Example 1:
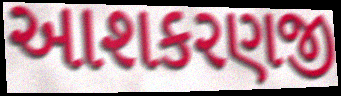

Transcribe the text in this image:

આશકરણજી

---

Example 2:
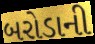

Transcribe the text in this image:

બરોડાની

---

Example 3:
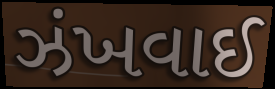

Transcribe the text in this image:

ઝંખવાઈ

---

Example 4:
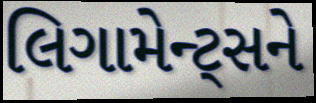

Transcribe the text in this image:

લિગામેન્ટ્સને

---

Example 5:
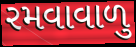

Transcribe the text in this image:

રમવાવાળુ